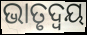
ଭାତୃଦ୍ବୟ